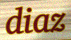
diaz